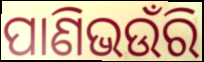
ପାଣିଭଉଁରି